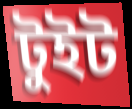
টুইট